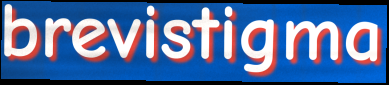
brevistigma